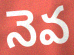
నెవ